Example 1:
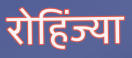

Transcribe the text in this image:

रोहिंज्या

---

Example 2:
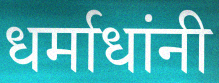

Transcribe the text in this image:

धर्माधांनी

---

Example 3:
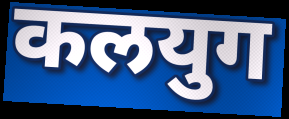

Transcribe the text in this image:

कलयुग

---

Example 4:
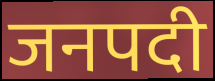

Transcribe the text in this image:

जनपदी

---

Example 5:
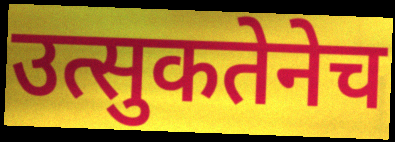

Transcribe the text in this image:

उत्सुकतेनेच